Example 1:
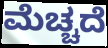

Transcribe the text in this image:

ಮೆಚ್ಚದೆ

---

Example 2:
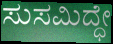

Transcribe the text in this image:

ಸುಸಮಿದ್ಧೇ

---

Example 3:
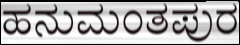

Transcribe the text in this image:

ಹನುಮಂತಪುರ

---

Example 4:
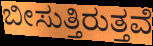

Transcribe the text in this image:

ಬೀಸುತ್ತಿರುತ್ತವೆ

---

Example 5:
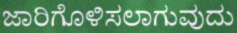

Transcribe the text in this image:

ಜಾರಿಗೊಳಿಸಲಾಗುವುದು